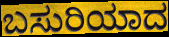
ಬಸುರಿಯಾದ